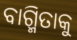
ବାଗ୍ମିତାକୁ